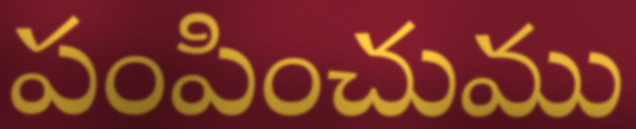
పంపించుము